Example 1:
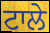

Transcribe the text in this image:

ਟਾਲੇ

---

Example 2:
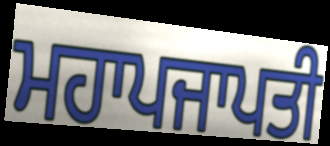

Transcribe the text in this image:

ਮਹਾਪਜਾਪਤੀ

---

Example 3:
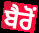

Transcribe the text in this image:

ਬੈਰੋਂ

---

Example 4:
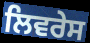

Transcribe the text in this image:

ਲਿਵਰੇਸ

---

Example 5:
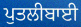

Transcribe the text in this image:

ਪੁਤਲੀਬਾਈ